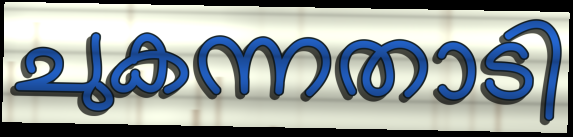
ചുകന്നതാടി